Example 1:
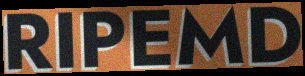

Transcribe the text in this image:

RIPEMD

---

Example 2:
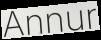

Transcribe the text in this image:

Annur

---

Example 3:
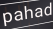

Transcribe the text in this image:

pahad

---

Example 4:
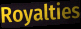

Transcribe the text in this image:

Royalties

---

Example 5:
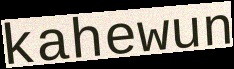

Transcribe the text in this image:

kahewun